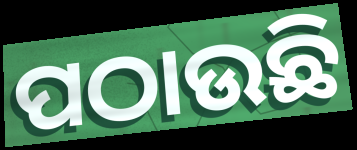
ପଠାଉଛି